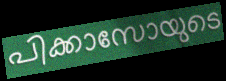
പിക്കാസോയുടെ